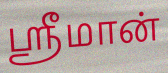
ஸ்ரீமான்